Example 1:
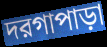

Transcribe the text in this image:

দরগাপাড়া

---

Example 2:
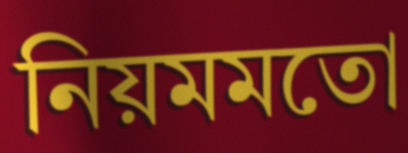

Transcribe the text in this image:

নিয়মমতো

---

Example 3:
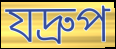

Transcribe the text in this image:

যদ্রুপ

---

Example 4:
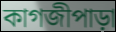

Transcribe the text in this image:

কাগজীপাড়া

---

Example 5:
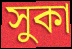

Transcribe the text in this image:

সুকা